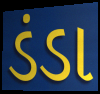
ડંડા